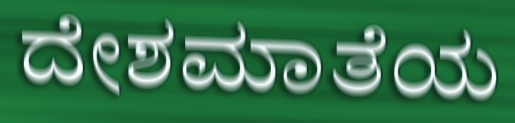
ದೇಶಮಾತೆಯ